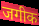
जगीक